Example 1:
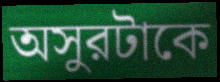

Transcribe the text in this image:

অসুরটাকে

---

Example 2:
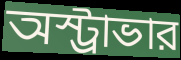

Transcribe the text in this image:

অস্ট্রাভার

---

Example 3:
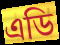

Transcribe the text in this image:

এডি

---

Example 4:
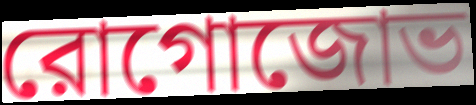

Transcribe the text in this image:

রোগোজোভ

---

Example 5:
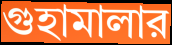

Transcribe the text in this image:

গুহামালার